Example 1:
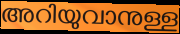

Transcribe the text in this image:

അറിയുവാനുള്ള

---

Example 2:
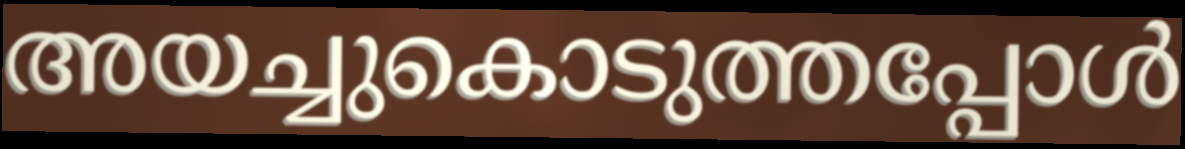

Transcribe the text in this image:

അയച്ചുകൊടുത്തപ്പോൾ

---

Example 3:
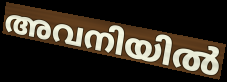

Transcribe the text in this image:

അവനിയിൽ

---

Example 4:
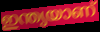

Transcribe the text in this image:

ഇന്ത്യയാണ്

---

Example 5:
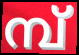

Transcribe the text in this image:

മ്പ്